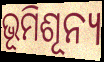
ଭୂମିଶୂନ୍ୟ